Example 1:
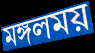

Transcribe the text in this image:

মঙ্গলময়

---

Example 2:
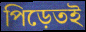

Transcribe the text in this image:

পিড়েতই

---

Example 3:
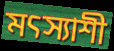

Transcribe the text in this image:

মৎস্যাশী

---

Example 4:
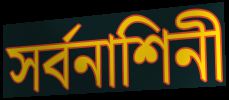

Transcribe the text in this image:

সর্বনাশিনী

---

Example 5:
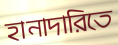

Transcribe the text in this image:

হানাদারিতে